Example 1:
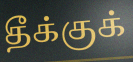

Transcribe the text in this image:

தீக்குக்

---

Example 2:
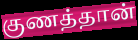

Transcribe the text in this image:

குணத்தான்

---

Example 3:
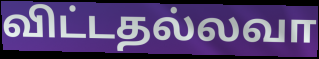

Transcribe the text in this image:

விட்டதல்லவா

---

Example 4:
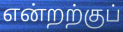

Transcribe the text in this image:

என்றற்குப்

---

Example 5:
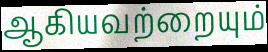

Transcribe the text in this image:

ஆகியவற்றையும்